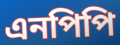
এনপিপি